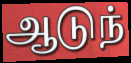
ஆடுந்